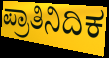
ಪ್ರಾತಿನಿದಿಕ